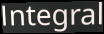
Integral